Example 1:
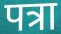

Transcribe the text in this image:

पत्रा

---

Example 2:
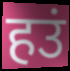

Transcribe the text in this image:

हउं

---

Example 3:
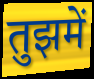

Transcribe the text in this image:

तुझमें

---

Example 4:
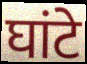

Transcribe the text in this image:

घांटे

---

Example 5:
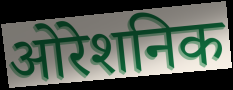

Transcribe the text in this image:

ओरेशनिक